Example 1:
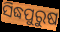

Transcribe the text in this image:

ସିଦ୍ଧପୁରୁଷ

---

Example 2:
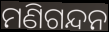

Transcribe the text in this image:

ମଣିଗନ୍ଦନ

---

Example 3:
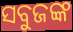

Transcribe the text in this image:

ସବୁଜଙ୍କ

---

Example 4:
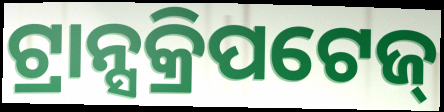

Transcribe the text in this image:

ଟ୍ରାନ୍ସକ୍ରିପଟେଜ୍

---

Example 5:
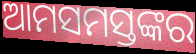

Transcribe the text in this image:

ଆମସମସ୍ତଙ୍କର